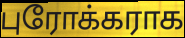
புரோக்கராக